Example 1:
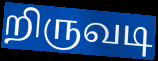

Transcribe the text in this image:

றிருவடி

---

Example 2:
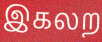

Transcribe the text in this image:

இகலற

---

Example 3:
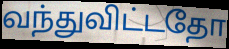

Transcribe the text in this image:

வந்துவிட்டதோ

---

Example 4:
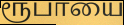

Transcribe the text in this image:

ரூபாயை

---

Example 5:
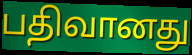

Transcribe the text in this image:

பதிவானது